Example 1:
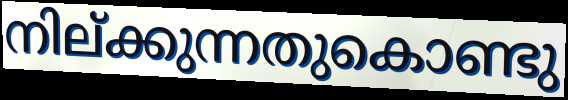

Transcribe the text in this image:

നില്ക്കുന്നതുകൊണ്ടു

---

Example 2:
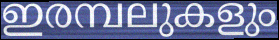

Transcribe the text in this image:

ഇരമ്പലുകളും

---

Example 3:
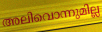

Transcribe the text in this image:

അലിവൊന്നുമില്ല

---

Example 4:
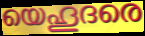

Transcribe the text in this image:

യെഹൂദരെ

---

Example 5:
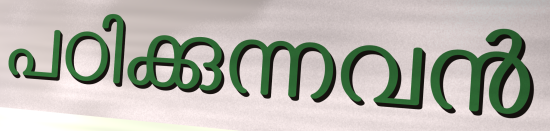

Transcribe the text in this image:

പഠിക്കുന്നവൻ